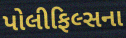
પોલીફિલ્સના